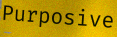
Purposive